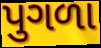
પુગળા